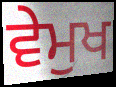
ਵੇਮੁਖ